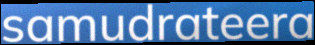
samudrateera